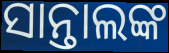
ସାନ୍ତାଲଙ୍କ